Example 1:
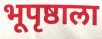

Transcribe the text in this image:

भूपृष्ठाला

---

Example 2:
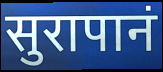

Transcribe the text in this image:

सुरापानं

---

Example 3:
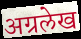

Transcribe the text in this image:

अग्रलेख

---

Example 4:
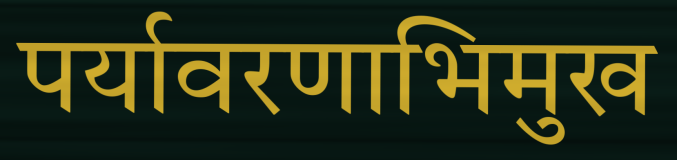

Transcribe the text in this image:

पर्यावरणाभिमुख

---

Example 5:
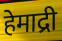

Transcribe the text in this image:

हेमाद्री